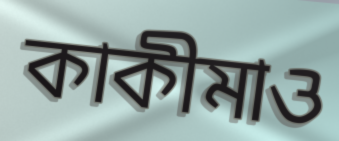
কাকীমাও